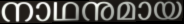
നാഥനുമായ